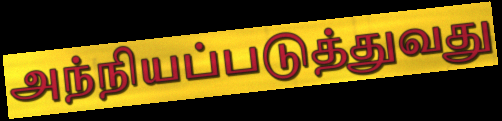
அந்நியப்படுத்துவது